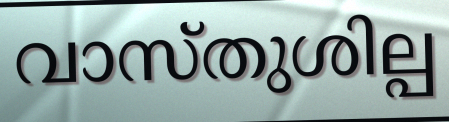
വാസ്തുശില്പ